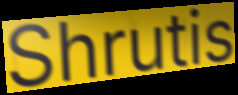
Shrutis